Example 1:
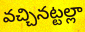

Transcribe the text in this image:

వచ్చినట్టల్లా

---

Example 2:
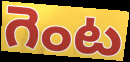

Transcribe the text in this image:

గెంట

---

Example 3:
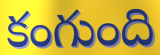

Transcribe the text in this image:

కంగుంది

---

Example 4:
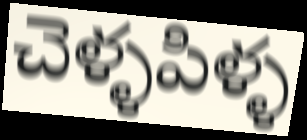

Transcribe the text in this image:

చెళ్ళపిళ్ళ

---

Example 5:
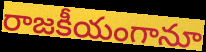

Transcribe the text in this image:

రాజకీయంగానూ